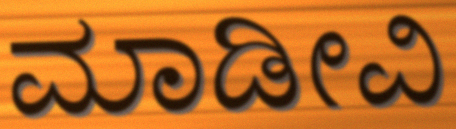
ಮಾಡೀವಿ